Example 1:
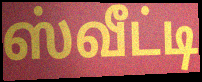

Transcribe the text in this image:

ஸ்வீட்டி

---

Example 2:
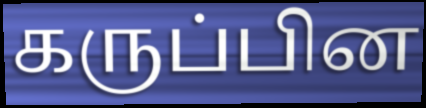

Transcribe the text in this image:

கருப்பின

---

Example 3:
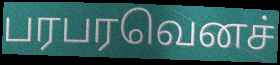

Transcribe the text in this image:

பரபரவெனச்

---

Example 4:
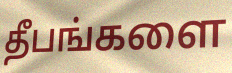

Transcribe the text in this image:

தீபங்களை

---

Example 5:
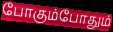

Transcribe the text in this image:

போகும்போதும்